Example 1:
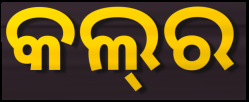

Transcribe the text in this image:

କଲ୍‌ର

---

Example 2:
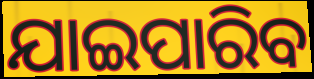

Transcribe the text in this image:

ଯାଇପାରିବ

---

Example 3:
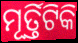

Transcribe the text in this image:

ମୂର୍ତ୍ତିଟିକି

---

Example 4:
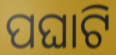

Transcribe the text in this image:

ପଘାଟି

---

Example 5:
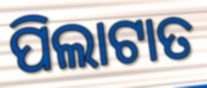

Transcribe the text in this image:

ପିଲାଟାତ